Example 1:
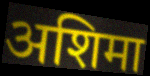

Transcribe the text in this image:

अशिमा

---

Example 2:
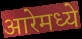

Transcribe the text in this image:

आरेमध्ये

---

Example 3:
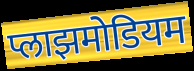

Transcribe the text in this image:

प्लाझमोडियम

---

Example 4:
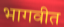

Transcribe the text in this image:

भागवीत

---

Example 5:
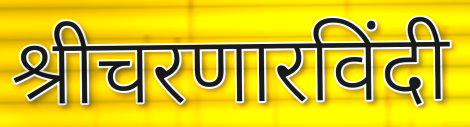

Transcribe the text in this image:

श्रीचरणारविंदी